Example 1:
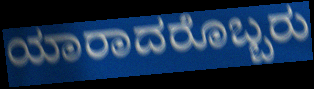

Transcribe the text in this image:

ಯಾರಾದರೊಬ್ಬರು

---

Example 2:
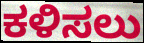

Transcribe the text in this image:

ಕಳಿಸಲು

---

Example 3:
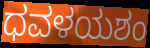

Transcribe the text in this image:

ಧವಳಯಶಂ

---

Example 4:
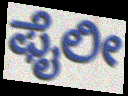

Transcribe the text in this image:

ಫೈಲೀ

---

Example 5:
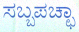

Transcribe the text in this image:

ಸಬ್ಬಪಚ್ಛಾ